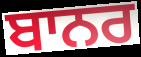
ਬਾਨਰ